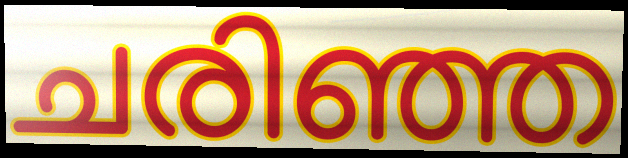
ചരിഞ്ഞ